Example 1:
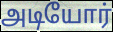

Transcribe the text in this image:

அடியோர்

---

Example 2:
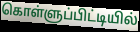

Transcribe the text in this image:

கொள்ளுப்பிட்டியில்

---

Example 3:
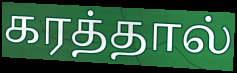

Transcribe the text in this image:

கரத்தால்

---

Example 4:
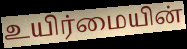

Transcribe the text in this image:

உயிர்மையின்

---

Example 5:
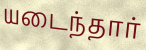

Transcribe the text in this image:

யடைந்தார்